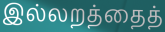
இல்லறத்தைத்